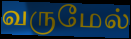
வருமேல்